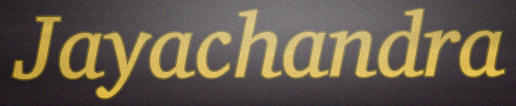
Jayachandra